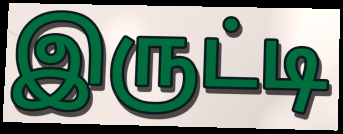
இருட்டி